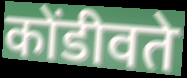
कोंडीवते